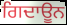
ਗਿਦਾਊਨ